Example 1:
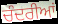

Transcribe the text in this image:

ਚੰਦਰੀਆਂ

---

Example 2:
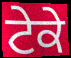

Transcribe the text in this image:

ਟੇਕੇ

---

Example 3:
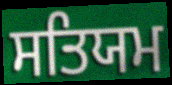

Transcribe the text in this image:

ਸਤਿਯਮ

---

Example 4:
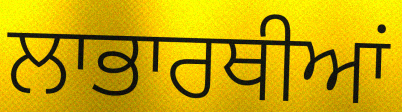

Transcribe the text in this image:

ਲਾਭਾਰਥੀਆਂ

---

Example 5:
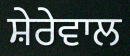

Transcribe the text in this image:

ਸ਼ੇਰੇਵਾਲ